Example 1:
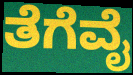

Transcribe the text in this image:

ತೆಗೆವೈ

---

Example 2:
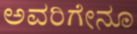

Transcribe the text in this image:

ಅವರಿಗೇನೂ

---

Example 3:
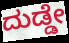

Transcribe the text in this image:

ದುಡ್ಡೇ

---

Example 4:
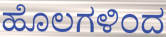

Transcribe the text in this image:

ಹೊಲಗಳಿಂದ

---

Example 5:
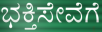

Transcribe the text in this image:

ಭಕ್ತಿಸೇವೆಗೆ